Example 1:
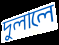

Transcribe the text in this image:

দুলালে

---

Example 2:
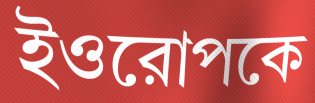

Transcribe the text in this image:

ইওরোপকে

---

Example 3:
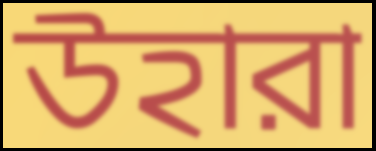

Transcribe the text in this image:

উহারা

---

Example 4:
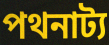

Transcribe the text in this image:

পথনাট্য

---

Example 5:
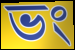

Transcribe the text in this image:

ভং